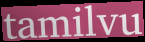
tamilvu